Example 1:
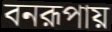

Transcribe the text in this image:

বনরূপায়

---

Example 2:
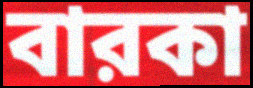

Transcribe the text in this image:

বারকা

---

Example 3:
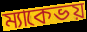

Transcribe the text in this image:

ম্যাকেভয়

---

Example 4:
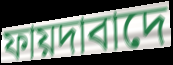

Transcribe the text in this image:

ফায়দাবাদে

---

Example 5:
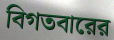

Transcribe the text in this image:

বিগতবারের